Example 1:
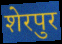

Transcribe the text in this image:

शेरपुर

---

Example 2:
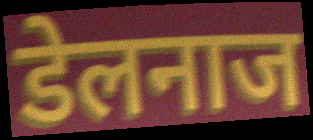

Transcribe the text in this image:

डेलनाज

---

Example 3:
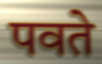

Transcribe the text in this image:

पवते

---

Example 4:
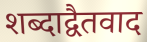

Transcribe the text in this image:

शब्दाद्वैतवाद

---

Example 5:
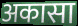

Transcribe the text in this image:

अकासा